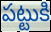
పట్టుకి